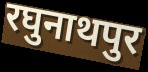
रघुनाथपुर